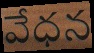
వేధన